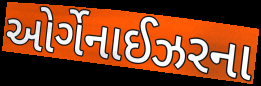
ઓર્ગેનાઈઝરના